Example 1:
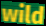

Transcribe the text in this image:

wild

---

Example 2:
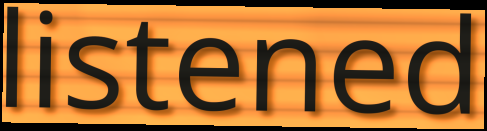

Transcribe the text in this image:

listened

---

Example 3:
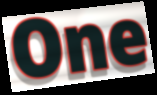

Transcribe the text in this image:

One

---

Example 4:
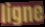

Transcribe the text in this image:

ligne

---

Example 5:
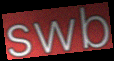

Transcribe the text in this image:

swb